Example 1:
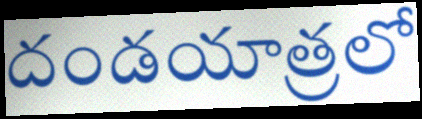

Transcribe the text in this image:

దండయాత్రలో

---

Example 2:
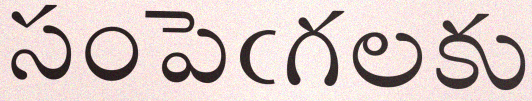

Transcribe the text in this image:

సంపెఁగలకు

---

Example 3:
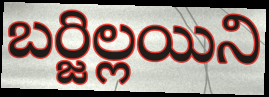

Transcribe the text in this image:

బర్జిల్లయిని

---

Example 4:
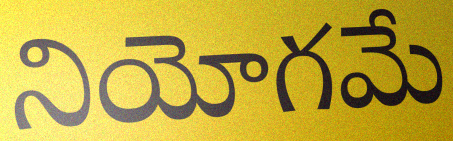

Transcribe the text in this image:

నియోగమే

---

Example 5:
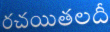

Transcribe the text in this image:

రచయితలదీ